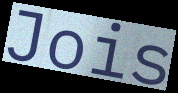
Jois